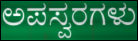
ಅಪಸ್ವರಗಳು